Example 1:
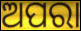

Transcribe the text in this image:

ଅପରା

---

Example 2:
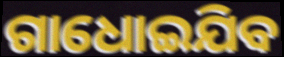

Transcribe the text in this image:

ଗାଧୋଇଯିବ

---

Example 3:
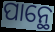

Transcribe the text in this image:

ପାନ୍ଥେ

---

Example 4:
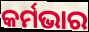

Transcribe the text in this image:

କର୍ମଭାର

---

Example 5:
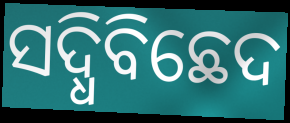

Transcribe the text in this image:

ସଦ୍ଧିବିଛେଦ